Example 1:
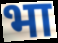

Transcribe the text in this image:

भा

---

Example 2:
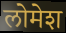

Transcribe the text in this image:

लोमेश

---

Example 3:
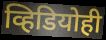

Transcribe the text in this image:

व्हिडियोही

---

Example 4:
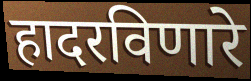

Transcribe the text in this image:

हादरविणारे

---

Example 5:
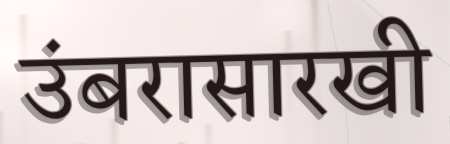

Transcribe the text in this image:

उंबरासारखी